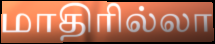
மாதிரில்லா